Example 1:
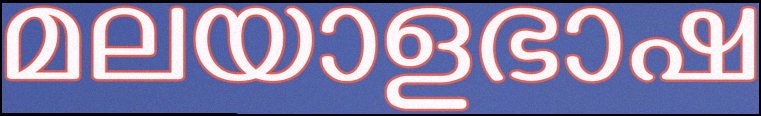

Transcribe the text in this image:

മലയാളഭാഷ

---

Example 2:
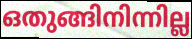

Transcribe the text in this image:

ഒതുങ്ങിനിന്നില്ല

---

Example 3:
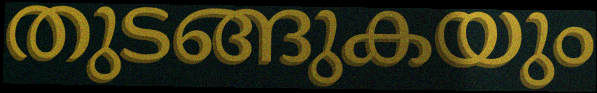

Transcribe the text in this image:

തുടങ്ങുകയും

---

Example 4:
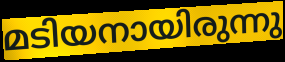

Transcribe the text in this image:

മടിയനായിരുന്നു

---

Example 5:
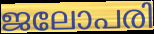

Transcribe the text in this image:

ജലോപരി